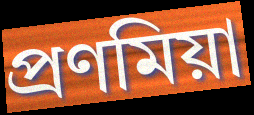
প্রণমিয়া